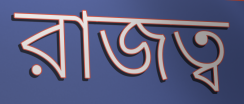
রাজত্ব